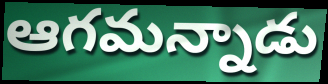
ఆగమన్నాడు